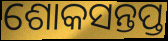
ଶୋକସନ୍ତପ୍ତ